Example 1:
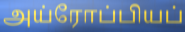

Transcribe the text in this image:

அய்ரோப்பியப்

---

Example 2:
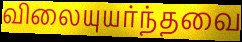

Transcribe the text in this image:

விலையுயர்ந்தவை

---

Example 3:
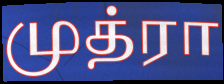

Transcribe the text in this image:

முத்ரா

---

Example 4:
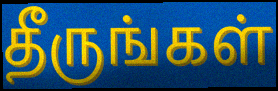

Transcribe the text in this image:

தீருங்கள்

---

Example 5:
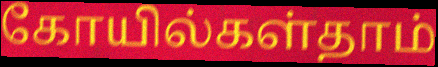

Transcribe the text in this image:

கோயில்கள்தாம்